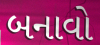
બનાવો